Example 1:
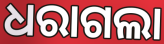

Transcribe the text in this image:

ଧରାଗଲା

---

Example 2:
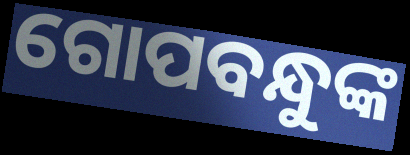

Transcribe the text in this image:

ଗୋପବନ୍ଧୁଙ୍କ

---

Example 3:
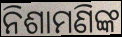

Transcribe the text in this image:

ନିଶାମଣିଙ୍କ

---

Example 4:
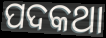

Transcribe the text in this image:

ପଦକଥା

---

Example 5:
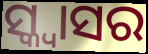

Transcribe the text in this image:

ସ୍କ୍ବାସର